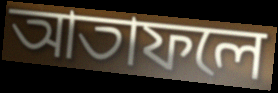
আতাফলে